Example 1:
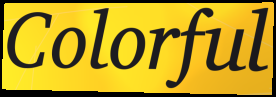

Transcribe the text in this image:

Colorful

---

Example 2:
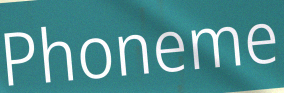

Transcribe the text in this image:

Phoneme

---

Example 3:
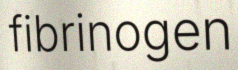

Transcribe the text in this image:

fibrinogen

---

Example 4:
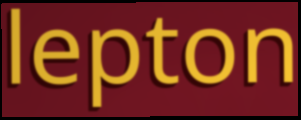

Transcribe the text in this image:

lepton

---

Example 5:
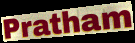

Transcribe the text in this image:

Pratham